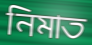
নিমাত